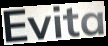
Evita